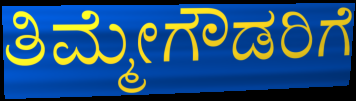
ತಿಮ್ಮೇಗೌಡರಿಗೆ